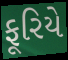
ફૂરિયે